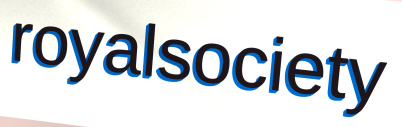
royalsociety